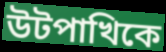
উটপাখিকে